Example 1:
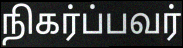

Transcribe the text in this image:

நிகர்ப்பவர்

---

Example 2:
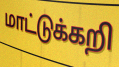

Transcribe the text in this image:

மாட்டுக்கறி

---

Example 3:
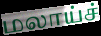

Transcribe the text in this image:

மலாய்ச்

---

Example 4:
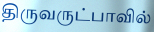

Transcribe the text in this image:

திருவருட்பாவில்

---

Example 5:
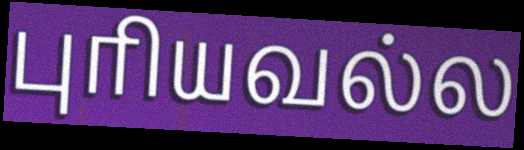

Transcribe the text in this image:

புரியவல்ல